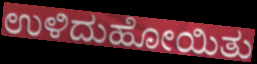
ಉಳಿದುಹೋಯಿತು